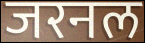
जरनल